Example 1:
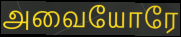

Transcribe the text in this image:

அவையோரே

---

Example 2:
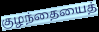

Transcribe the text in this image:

குழந்தையைத்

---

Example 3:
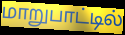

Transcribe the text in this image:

மாறுபாட்டில்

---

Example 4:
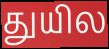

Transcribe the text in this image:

துயில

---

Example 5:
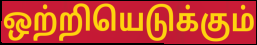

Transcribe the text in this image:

ஒற்றியெடுக்கும்